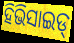
ହିଭିସାଇଡ୍